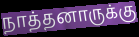
நாத்தனாருக்கு